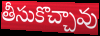
తీసుకొచ్చావు